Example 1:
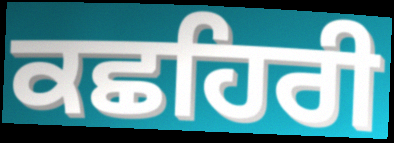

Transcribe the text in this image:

ਕਛਹਿਰੀ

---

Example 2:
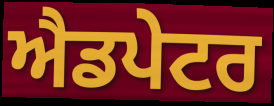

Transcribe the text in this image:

ਐਡਪੇਟਰ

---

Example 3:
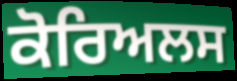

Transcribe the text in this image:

ਕੋਰਿਅਲਸ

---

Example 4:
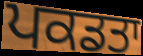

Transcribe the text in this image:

ਪਕਡਤਾ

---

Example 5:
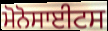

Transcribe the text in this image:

ਮੋਨੋਸਾਈਟਸ